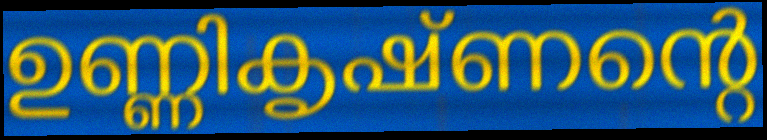
ഉണ്ണികൃഷ്‌ണന്റെ